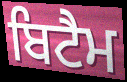
ਬਿਟੈਮ